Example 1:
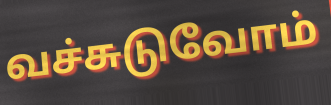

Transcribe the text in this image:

வச்சுடுவோம்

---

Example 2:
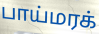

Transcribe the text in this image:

பாய்மரக்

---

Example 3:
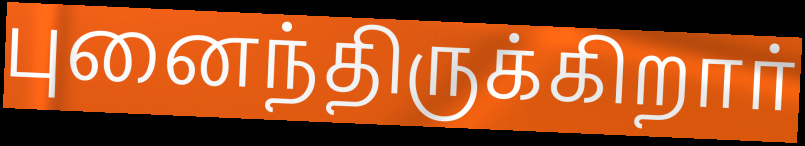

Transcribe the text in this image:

புனைந்திருக்கிறார்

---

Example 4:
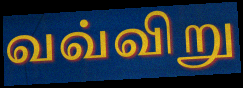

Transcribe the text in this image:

வவ்விறு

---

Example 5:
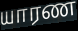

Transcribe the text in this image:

யாரண